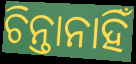
ଚିନ୍ତାନାହିଁ